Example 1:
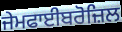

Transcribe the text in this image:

ਜੇਮਫਾਈਬਰੋਜ਼ਿਲ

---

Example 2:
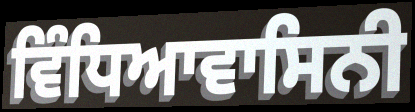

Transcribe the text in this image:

ਵਿੰਧਿਆਵਾਸਿਨੀ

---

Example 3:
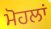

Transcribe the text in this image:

ਮੋਹਲਾਂ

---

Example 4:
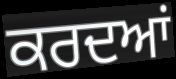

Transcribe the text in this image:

ਕਰਦਆਂ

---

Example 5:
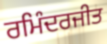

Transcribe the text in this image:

ਰਮਿੰਦਰਜੀਤ